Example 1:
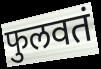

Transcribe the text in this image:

फुलवतं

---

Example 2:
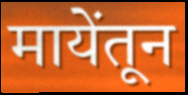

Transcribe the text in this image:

मायेंतून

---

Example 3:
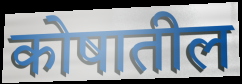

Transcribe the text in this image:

कोषातील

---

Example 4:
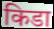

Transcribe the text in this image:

किडा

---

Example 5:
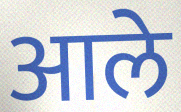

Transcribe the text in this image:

आले